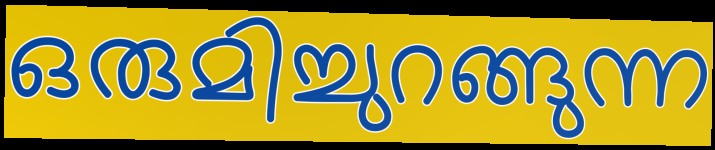
ഒരുമിച്ചുറങ്ങുന്ന